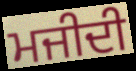
ਮਜੀਦੀ